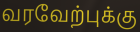
வரவேற்புக்கு